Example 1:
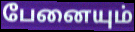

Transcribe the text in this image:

பேனையும்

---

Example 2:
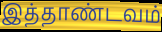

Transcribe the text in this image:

இத்தாண்டவம்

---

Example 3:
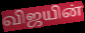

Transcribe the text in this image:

விஜயின்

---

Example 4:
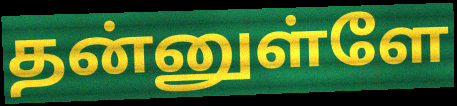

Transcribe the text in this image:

தன்னுள்ளே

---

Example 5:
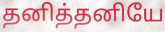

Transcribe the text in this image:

தனித்தனியே